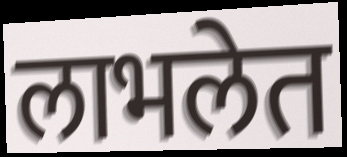
लाभलेत